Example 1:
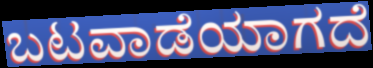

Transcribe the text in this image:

ಬಟವಾಡೆಯಾಗದೆ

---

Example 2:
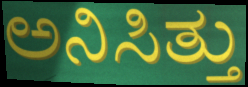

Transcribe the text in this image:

ಅನಿಸಿತ್ತು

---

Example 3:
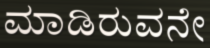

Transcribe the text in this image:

ಮಾಡಿರುವನೇ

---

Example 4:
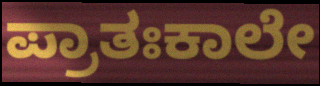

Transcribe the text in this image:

ಪ್ರಾತಃಕಾಲೇ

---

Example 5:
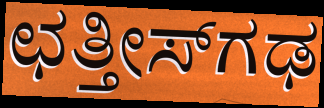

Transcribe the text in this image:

ಛತ್ತೀಸ್‌ಗಢ